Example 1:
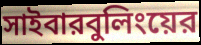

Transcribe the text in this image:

সাইবারবুলিংয়ের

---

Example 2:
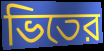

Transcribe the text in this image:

ভিতের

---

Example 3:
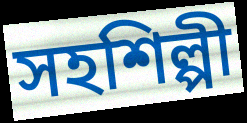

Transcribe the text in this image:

সহশিল্পী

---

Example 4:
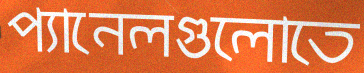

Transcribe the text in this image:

প্যানেলগুলোতে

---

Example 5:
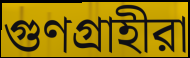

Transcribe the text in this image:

গুণগ্রাহীরা